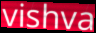
vishva